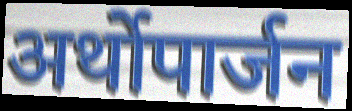
अर्थोपार्जन